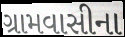
ગ્રામવાસીના